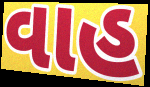
વાહ